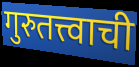
गुरुतत्त्वाची